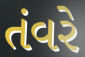
તંવરે